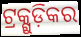
ଟ୍ରକ୍ଗୁଡ଼ିକର